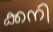
ക്കനി